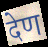
देण